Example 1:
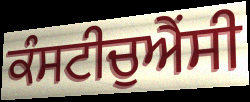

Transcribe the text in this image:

ਕੰਸਟੀਚੁਐਂਸੀ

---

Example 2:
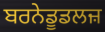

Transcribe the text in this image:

ਬਰਨੇਡੂਡਲਜ਼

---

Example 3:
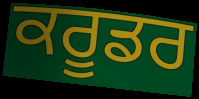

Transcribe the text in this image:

ਕਰੂਡਰ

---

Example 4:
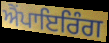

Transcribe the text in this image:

ਐਂਪਾਇਰਿੰਗ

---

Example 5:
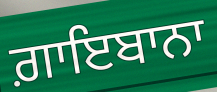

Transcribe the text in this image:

ਗ਼ਾਇਬਾਨਾ